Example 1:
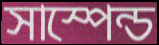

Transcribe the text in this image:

সাস্পেন্ড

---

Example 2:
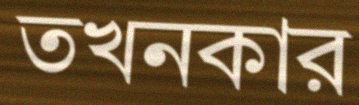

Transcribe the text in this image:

তখনকার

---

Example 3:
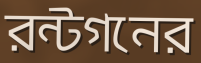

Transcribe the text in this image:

রন্টগনের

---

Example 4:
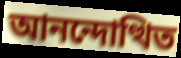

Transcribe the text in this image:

আনন্দোত্থিত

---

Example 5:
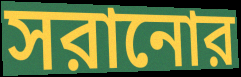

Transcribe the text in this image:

সরানোর